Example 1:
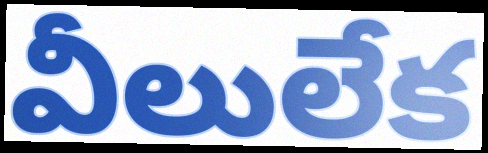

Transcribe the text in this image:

వీలులేక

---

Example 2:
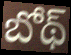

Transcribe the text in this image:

బోథ్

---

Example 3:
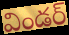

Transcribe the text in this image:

విండర్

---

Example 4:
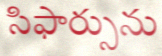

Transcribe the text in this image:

సిఫార్సును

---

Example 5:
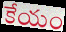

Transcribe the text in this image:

కేయం